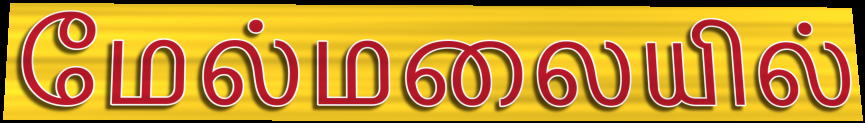
மேல்மலையில்